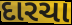
દારચા